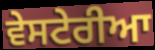
ਵੇਸਟੇਰੀਆ